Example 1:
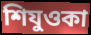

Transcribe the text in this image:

শিযুওকা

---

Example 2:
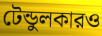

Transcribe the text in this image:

টেন্ডুলকারও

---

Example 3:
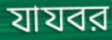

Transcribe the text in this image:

যাযবর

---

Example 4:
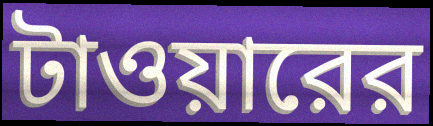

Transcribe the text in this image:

টাওয়ারের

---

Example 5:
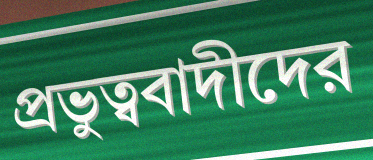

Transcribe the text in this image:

প্রভুত্ববাদীদের